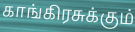
காங்கிரசுக்கும்